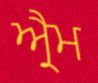
ਐ੍ਰਮ